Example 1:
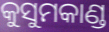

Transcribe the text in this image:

କୁସୁମକାଣ୍ଡ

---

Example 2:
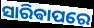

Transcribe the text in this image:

ସାରିଵାପରେ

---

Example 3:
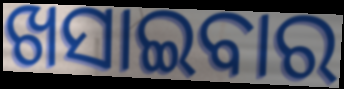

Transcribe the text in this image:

ଖସାଇବାର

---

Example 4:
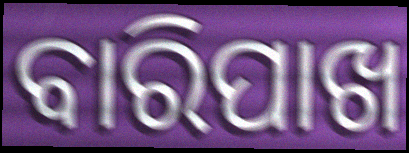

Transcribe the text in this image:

ବାରିପାଖ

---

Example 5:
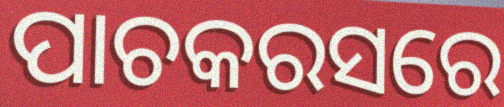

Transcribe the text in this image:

ପାଚକରସରେ